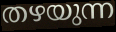
തഴയുന്ന